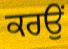
ਕਰਉਂ